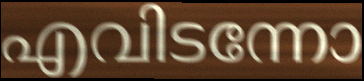
എവിടന്നോ